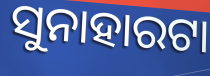
ସୁନାହାରଟା